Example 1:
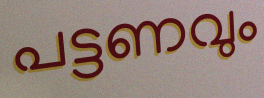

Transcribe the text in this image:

പട്ടണവും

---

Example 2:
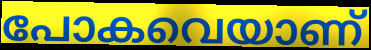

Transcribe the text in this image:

പോകവെയാണ്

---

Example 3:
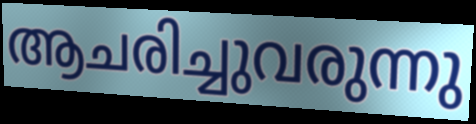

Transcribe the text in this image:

ആചരിച്ചുവരുന്നു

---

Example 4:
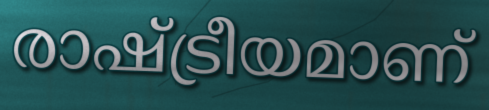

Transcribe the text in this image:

രാഷ്ട്രീയമാണ്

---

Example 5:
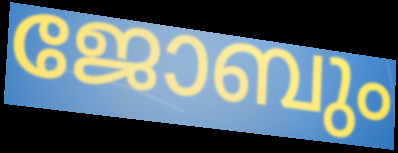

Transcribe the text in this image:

ജോബും